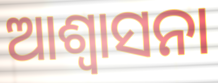
ଆଶ୍ୱାସନା